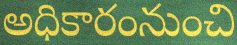
అధికారంనుంచి